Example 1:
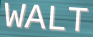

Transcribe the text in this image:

WALT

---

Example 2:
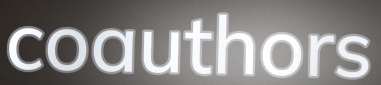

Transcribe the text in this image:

coauthors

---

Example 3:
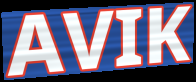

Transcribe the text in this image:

AVIK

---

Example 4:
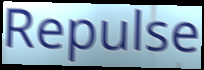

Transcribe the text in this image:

Repulse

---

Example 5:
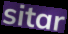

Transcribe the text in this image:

sitar